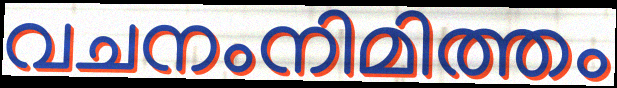
വചനംനിമിത്തം